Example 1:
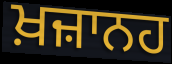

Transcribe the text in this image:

ਖ਼ਜ਼ਾਨਹ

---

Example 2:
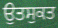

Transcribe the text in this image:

ਉਤਸੁਕਤ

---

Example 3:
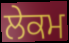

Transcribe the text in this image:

ਲੇਕਮ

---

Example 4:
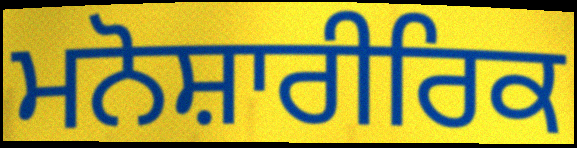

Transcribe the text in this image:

ਮਨੋਸ਼ਾਰੀਰਿਕ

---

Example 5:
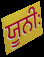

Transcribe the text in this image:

ਯੂਨੀਃ